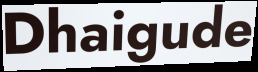
Dhaigude